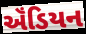
ઍંડિયન